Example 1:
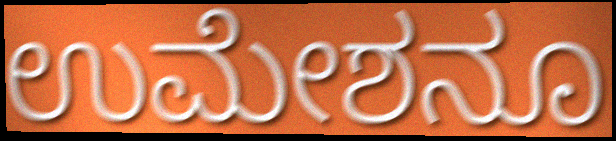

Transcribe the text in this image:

ಉಮೇಶನೂ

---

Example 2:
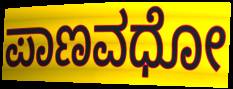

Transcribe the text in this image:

ಪಾಣವಧೋ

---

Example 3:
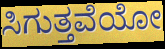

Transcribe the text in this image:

ಸಿಗುತ್ತವೆಯೋ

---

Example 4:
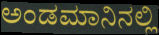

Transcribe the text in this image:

ಅಂಡಮಾನಿನಲ್ಲಿ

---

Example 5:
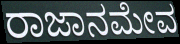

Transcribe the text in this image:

ರಾಜಾನಮೇವ